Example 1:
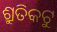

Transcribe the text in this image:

ଶ୍ରୁତିକଟୁ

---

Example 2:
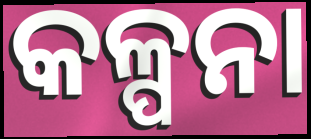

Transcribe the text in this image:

କଳ୍ପନା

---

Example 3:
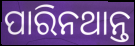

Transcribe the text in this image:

ପାରିନଥାନ୍ତ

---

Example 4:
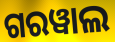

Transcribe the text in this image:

ଗରୱାଲ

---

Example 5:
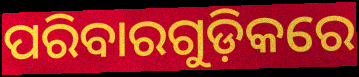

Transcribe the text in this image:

ପରିବାରଗୁଡ଼ିକରେ